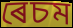
ৰেচম